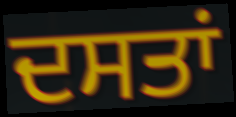
ਦਸਤਾਂ